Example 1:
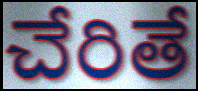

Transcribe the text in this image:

చేరితే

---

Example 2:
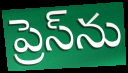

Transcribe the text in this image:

ప్రెస్‌ను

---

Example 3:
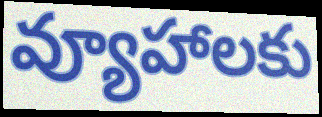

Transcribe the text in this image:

వ్యూహాలకు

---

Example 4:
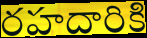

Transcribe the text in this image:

రహదారికి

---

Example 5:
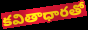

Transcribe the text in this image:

కవితాధారతో